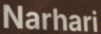
Narhari